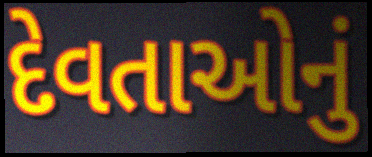
દેવતાઓનું